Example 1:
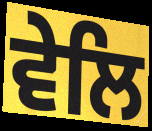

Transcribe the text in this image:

ਵੇਲਿ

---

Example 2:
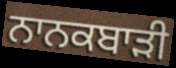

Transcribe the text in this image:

ਨਾਨਕਬਾੜੀ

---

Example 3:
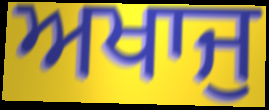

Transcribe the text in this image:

ਅਖਾਜੁ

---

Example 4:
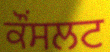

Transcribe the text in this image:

ਕੌਂਸਲਟ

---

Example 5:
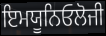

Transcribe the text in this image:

ਇਮਯੂਨਿਓਲੋਜੀ